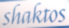
shaktos